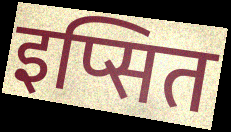
इप्सित